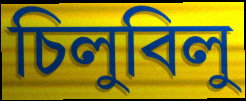
চিলুবিলু